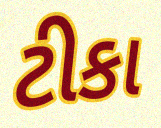
ટીકા